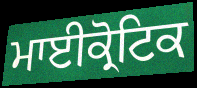
ਮਾਈਕ੍ਰੋਟਿਕ